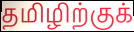
தமிழிற்குக்